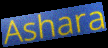
Ashara